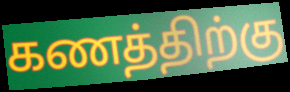
கணத்திற்கு